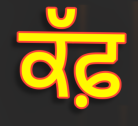
ਕੱਫ਼